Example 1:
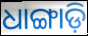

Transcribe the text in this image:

ଧାଙ୍ଗାଡ଼ି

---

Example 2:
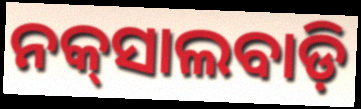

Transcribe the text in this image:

ନକ୍‌ସାଲବାଡ଼ି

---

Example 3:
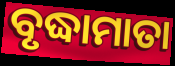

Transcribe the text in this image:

ବୃଦ୍ଧାମାତା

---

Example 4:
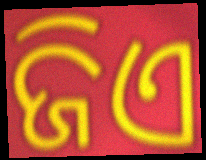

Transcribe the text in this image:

ଜିଏ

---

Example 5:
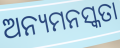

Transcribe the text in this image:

ଅନ୍ୟମନସ୍କତା